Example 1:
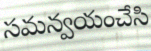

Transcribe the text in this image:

సమన్వయంచేసి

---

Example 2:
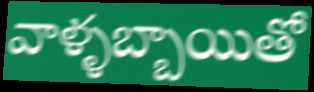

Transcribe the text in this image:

వాళ్ళబ్బాయితో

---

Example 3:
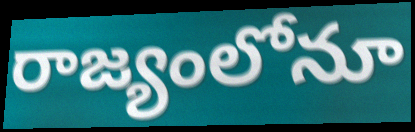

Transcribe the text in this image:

రాజ్యంలోనూ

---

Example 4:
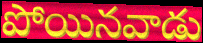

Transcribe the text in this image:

పోయినవాడు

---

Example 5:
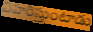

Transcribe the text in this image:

విహరిస్తుంటాడు